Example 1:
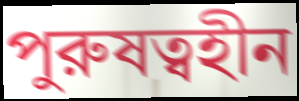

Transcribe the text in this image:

পুরুষত্বহীন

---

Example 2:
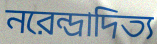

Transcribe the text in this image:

নরেন্দ্রাদিত্য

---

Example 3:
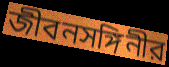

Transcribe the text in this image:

জীবনসঙ্গিনীর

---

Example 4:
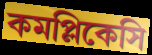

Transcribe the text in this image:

কমপ্লিকেসি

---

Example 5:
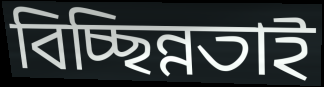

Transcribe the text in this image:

বিচ্ছিন্নতাই